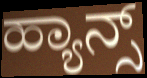
ಹ್ಯಾನ್ಸ್